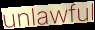
unlawful